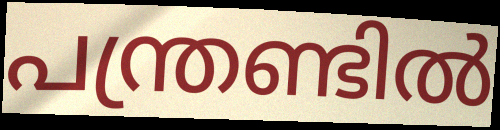
പന്ത്രണ്ടിൽ